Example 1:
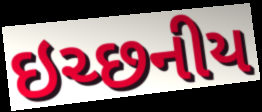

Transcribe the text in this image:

ઇચ્છનીય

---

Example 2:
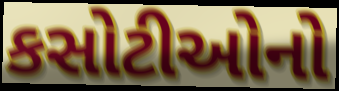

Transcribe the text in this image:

કસોટીઓનો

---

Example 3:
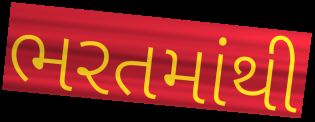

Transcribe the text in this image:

ભરતમાંથી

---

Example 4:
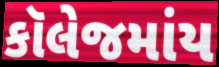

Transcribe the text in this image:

કૉલેજમાંય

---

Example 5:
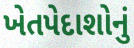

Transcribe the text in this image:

ખેતપેદાશોનું